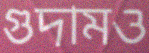
গুদামও